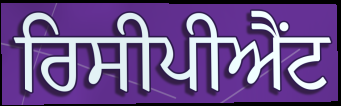
ਰਿਸੀਪੀਐਂਟ